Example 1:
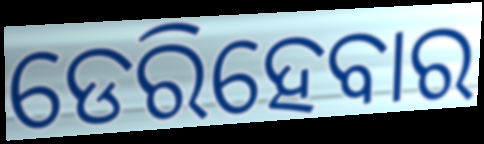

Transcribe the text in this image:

ଡେରିହେବାର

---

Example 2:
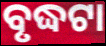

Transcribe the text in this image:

ବୃଦ୍ଧଟା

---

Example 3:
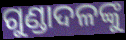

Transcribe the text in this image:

ଗୁଣ୍ଡାଦଳଙ୍କୁ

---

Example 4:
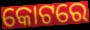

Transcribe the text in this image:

କୋଟରେ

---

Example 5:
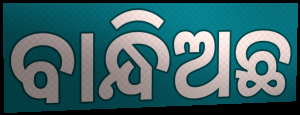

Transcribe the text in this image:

ବାନ୍ଧିଅଛ